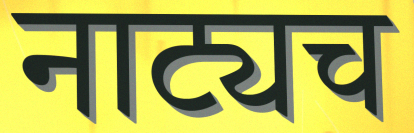
नाट्यच